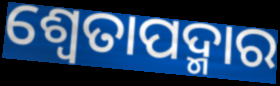
ଶ୍ଵେତାପଦ୍ମାର